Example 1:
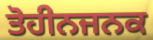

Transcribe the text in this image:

ਤੋਹੀਨਜਨਕ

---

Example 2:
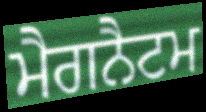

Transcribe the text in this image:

ਮੈਗਨੈਟਮ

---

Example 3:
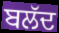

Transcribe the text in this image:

ਬਲੱਦ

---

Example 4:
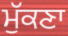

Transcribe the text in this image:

ਮੁੱਕਣਾ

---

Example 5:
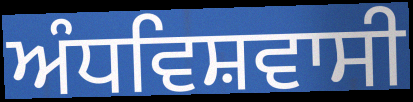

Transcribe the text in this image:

ਅੰਧਵਿਸ਼ਵਾਸੀ